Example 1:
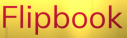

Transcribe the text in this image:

Flipbook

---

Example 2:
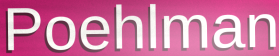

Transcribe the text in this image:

Poehlman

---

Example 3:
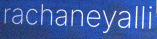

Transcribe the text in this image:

rachaneyalli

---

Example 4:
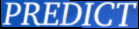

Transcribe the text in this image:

PREDICT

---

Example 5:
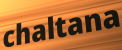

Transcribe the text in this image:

chaltana